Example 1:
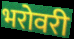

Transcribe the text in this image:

भरोवरी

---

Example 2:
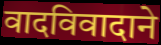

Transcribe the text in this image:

वादविवादाने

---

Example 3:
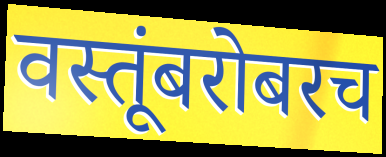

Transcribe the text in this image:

वस्तूंबरोबरच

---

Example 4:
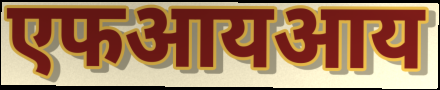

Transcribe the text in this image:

एफआयआय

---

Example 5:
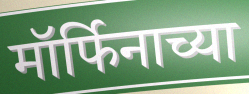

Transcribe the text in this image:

मॉर्फिनाच्या